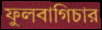
ফুলবাগিচার